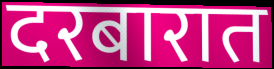
दरबारात